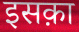
इसक़ा